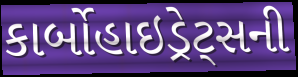
કાર્બોહાઇડ્રેટ્સની